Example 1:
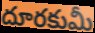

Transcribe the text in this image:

దూరకుమీ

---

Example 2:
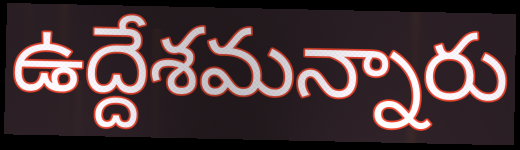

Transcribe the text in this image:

ఉద్దేశమన్నారు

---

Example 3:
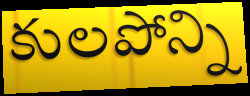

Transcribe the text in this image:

కులపోన్ని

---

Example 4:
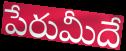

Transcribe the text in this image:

పేరుమీదే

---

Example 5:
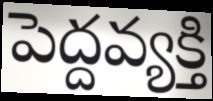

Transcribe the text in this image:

పెద్దవ్యక్తి